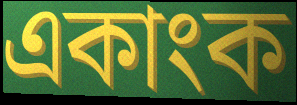
একাংক